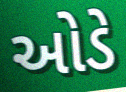
ઓડે